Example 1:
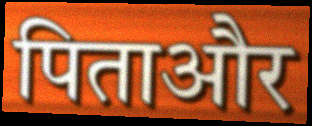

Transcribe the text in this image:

पिताऔर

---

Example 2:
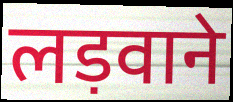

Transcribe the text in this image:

लड़वाने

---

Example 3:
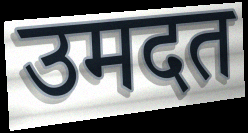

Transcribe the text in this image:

उमदत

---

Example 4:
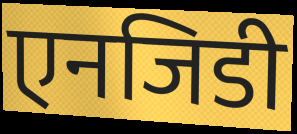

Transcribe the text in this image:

एनजिडी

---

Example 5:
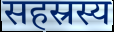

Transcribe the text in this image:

सहस्रस्य